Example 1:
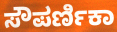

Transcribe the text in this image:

ಸೌಪರ್ಣಿಕಾ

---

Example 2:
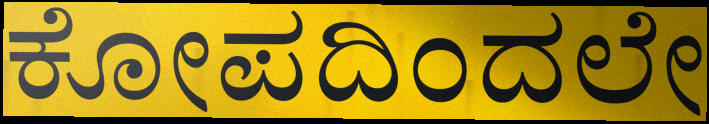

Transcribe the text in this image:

ಕೋಪದಿಂದಲೇ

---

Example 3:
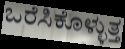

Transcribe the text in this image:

ಒರೆಸಿಕೊಳ್ಳುತ್ತ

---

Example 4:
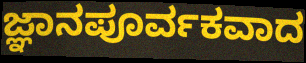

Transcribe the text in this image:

ಜ್ಞಾನಪೂರ್ವಕವಾದ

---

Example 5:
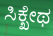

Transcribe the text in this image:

ಸಿಕ್ಖೇಥ